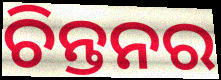
ଚିନ୍ତନର